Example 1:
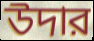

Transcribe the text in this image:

উদার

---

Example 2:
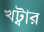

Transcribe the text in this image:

খট্বার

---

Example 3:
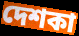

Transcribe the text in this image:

দেশকা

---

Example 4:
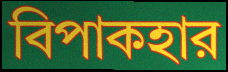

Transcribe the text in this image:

বিপাকহার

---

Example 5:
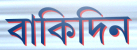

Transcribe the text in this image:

বাকিদিন